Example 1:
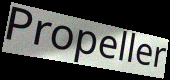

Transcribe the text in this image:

Propeller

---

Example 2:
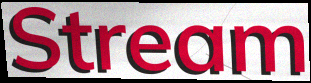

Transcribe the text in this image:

Stream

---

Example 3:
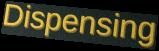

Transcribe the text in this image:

Dispensing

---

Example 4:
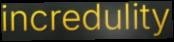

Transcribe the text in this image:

incredulity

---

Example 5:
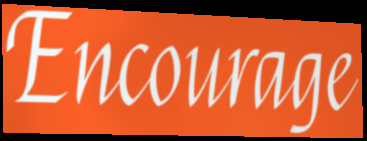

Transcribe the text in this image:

Encourage